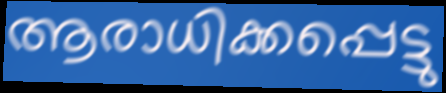
ആരാധിക്കപ്പെട്ടു